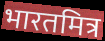
भारतमित्र